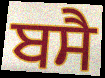
ਬਸੈ